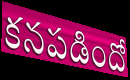
కనపడిందో